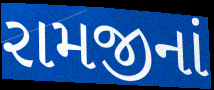
રામજીનાં